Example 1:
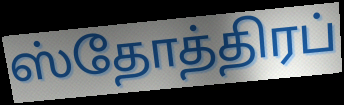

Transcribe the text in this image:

ஸ்தோத்திரப்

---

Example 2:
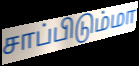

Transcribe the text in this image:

சாப்பிடும்மா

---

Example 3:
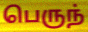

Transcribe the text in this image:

பெருந்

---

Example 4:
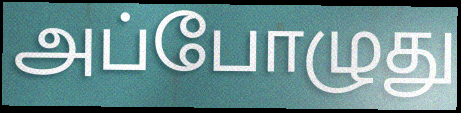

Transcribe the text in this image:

அப்போழுது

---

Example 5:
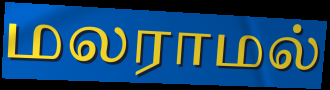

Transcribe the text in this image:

மலராமல்